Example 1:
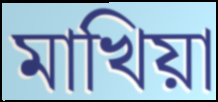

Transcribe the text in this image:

মাখিয়া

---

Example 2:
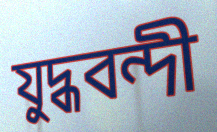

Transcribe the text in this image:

যুদ্ধবন্দী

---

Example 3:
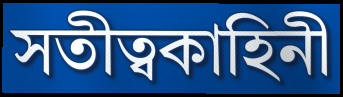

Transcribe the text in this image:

সতীত্বকাহিনী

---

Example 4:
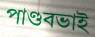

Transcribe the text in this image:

পাণ্ডবভাই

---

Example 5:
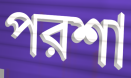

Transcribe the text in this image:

পরশা